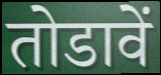
तोडावें